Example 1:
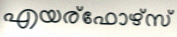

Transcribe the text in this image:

എയര്ഫോഴ്സ്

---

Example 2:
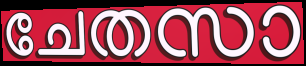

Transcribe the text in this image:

ചേതസാ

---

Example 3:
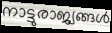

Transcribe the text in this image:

നാട്ടുരാജ്യങ്ങൾ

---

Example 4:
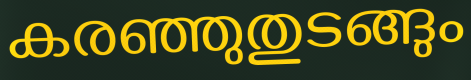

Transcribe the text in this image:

കരഞ്ഞുതുടങ്ങും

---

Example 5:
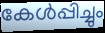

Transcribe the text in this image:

കേൾപ്പിച്ചും